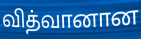
வித்வானான